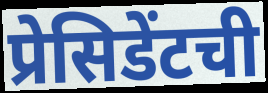
प्रेसिडेंटची